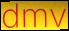
dmv